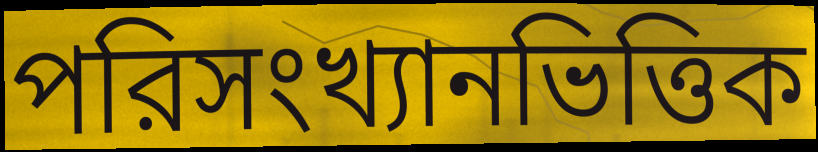
পরিসংখ্যানভিত্তিক